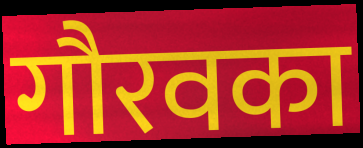
गौरवका